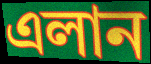
এলান